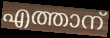
എത്താന്